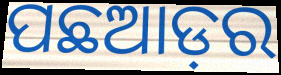
ପଛଆଡ଼ର